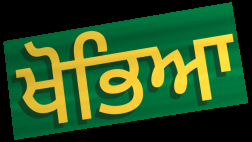
ਖੋਭਿਆ